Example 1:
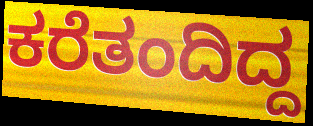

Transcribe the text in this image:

ಕರೆತಂದಿದ್ದ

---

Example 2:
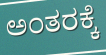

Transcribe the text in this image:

ಅಂತರಕ್ಕೆ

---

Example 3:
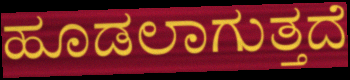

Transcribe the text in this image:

ಹೂಡಲಾಗುತ್ತದೆ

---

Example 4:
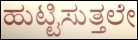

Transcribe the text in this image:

ಹುಟ್ಟಿಸುತ್ತಲೇ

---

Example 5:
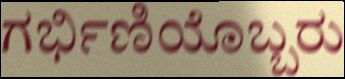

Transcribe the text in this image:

ಗರ್ಭಿಣಿಯೊಬ್ಬರು